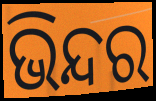
ଭିନ୍ଦର